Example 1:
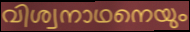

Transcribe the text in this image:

വിശ്വനാഥനെയും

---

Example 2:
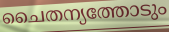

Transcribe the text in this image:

ചൈതന്യത്തോടും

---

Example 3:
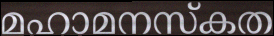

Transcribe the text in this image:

മഹാമനസ്കത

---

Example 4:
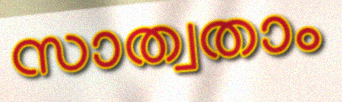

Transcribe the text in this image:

സാത്വതാം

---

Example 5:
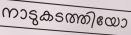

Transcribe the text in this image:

നാടുകടത്തിയോ